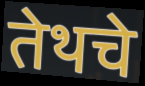
तेथचे